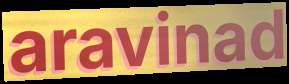
aravinad